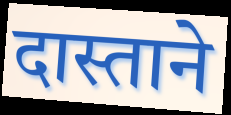
दास्ताने